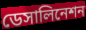
ডেসালিনেশন